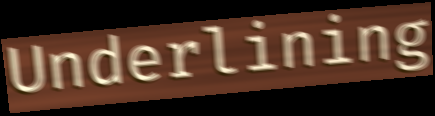
Underlining